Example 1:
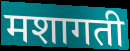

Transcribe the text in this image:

मशागती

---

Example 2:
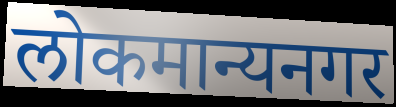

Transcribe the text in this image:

लोकमान्यनगर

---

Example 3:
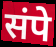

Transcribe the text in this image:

संपे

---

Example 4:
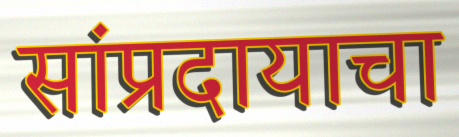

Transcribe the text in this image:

सांप्रदायाचा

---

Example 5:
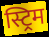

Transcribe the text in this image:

स्ट्रिम